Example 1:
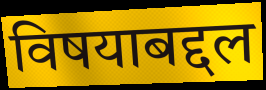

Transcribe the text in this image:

विषयाबद्दल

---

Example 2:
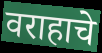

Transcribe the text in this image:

वराहाचे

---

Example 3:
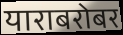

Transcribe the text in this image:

याराबरोबर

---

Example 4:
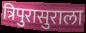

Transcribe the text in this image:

त्रिपुरासुराला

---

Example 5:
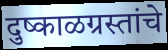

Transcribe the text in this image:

दुष्काळग्रस्तांचे